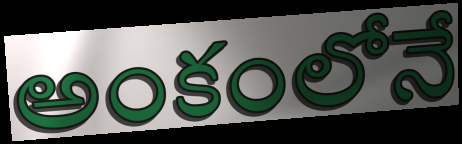
అంకంలోనే